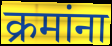
क्रमांना